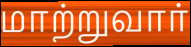
மாற்றுவார்